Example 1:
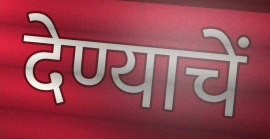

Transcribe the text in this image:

देण्याचें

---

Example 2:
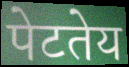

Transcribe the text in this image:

पेटतेय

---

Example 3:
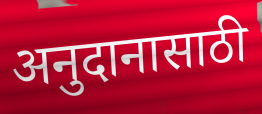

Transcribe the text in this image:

अनुदानासाठी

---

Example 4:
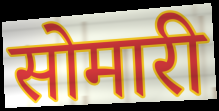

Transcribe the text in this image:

सोमारी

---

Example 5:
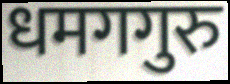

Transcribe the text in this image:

धमगगुरु